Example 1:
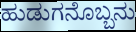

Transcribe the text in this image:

ಹುಡುಗನೊಬ್ಬನು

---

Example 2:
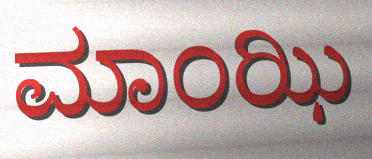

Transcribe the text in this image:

ಮಾಂಝಿ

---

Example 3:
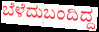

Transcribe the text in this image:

ಬೆಳೆದುಬಂದಿದ್ದ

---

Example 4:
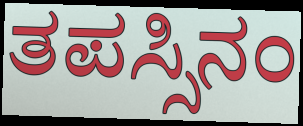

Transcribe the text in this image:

ತಪಸ್ಸಿನಂ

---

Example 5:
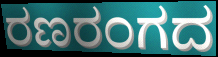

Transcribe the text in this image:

ರಣರಂಗದ